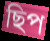
ছিপ